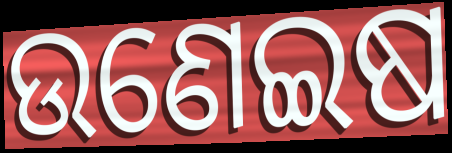
ଉଣେଇଷ